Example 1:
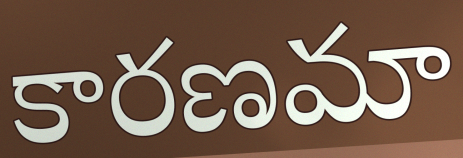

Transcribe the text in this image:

కారణమా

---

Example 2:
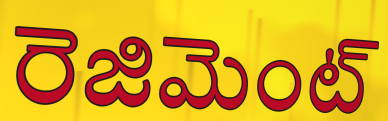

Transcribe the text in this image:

రెజిమెంట్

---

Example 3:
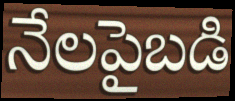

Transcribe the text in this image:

నేలపైబడి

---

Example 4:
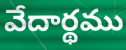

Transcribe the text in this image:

వేదార్థము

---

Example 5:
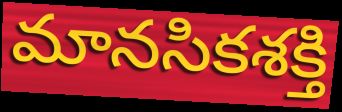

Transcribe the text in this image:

మానసికశక్తి